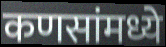
कणसांमध्ये